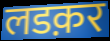
लडक़र